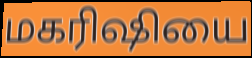
மகரிஷியை